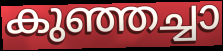
കുഞ്ഞച്ചാ